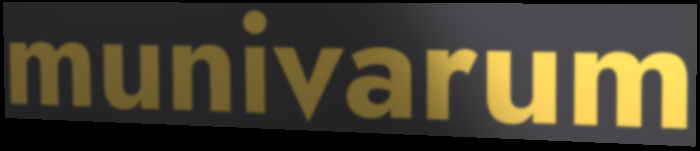
munivarum